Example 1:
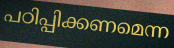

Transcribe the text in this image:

പഠിപ്പിക്കണമെന്ന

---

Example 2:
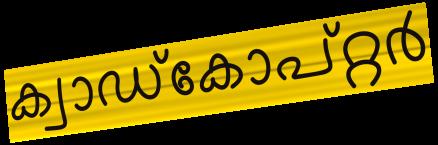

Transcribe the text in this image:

ക്വാഡ്കോപ്റ്റർ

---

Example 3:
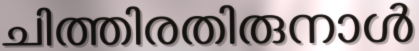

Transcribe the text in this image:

ചിത്തിരതിരുനാൾ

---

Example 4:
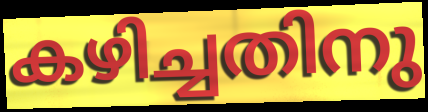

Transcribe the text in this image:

കഴിച്ചതിനു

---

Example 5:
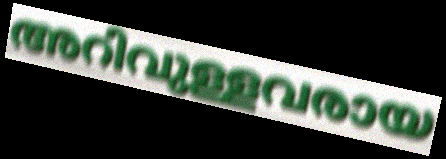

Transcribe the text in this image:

അറിവുള്ളവരായ